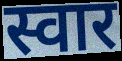
स्वार